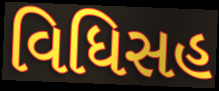
વિધિસહ